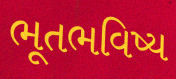
ભૂતભવિષ્ય